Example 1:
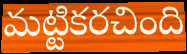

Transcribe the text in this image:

మట్టికరచింది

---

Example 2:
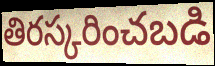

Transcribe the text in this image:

తిరస్కరించబడి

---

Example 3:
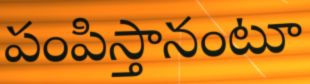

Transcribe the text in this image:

పంపిస్తానంటూ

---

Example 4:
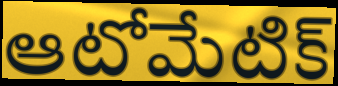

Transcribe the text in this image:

ఆటోమేటిక్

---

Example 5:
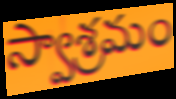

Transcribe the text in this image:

స్వాశ్రమం